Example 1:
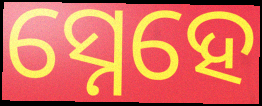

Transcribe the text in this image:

ସ୍ନେହେ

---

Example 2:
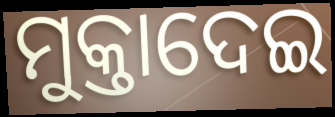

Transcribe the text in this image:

ମୁକ୍ତାଦେଇ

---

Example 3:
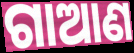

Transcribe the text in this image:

ଗାଆଣ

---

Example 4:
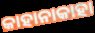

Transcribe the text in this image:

କାହାନାକାହା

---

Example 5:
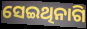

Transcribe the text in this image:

ସେଇଥିନାଗି